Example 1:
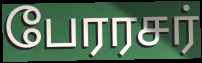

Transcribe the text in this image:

பேரரசர்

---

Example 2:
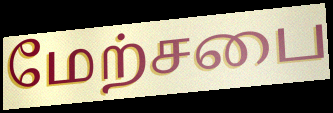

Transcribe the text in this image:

மேற்சபை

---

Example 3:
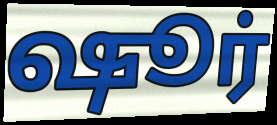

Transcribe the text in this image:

ஷூர்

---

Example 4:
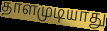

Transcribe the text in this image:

தாளமுடியாது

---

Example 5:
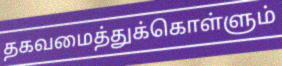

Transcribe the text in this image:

தகவமைத்துக்கொள்ளும்